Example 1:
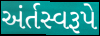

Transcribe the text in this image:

અંર્તસ્વરૂપે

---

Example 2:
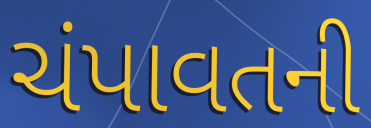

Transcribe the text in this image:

ચંપાવતની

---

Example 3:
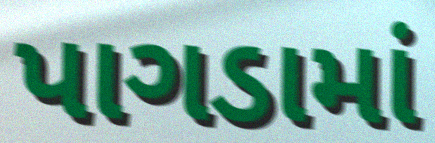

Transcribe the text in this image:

પાગડામાં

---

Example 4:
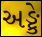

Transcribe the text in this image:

અઙ્કે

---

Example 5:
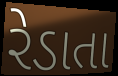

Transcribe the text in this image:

રેડાતા